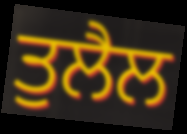
ਤੁਲੈਲ